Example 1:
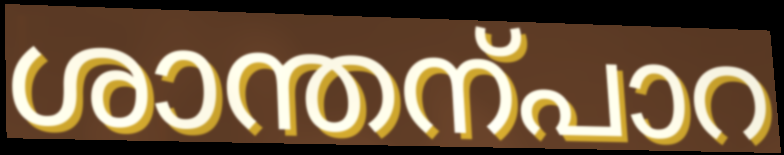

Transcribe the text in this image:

ശാന്തന്പാറ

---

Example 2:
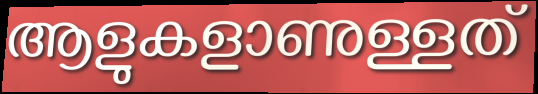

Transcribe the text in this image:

ആളുകളാണുള്ളത്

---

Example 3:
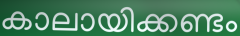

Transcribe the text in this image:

കാലായിക്കണ്ടം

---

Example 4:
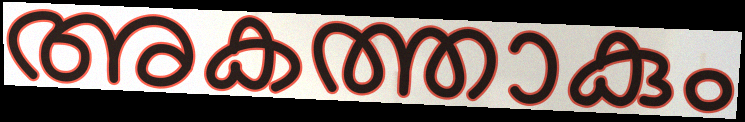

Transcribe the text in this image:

അകത്താകും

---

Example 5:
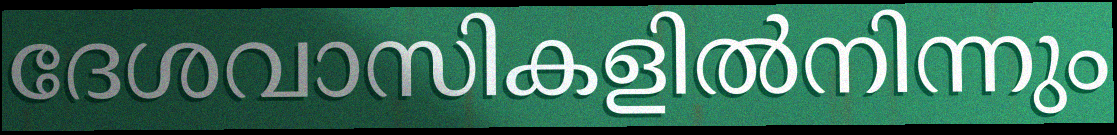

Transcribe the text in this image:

ദേശവാസികളിൽനിന്നും